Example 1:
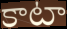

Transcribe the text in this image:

కాటా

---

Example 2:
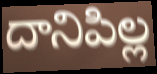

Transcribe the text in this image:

దానిపిల్ల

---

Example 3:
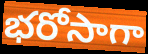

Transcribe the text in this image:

భరోసాగా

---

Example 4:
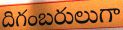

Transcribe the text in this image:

దిగంబరులుగా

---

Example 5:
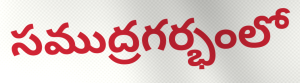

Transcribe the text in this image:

సముద్రగర్భంలో